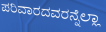
ಪರಿವಾರದವರನ್ನೆಲ್ಲಾ